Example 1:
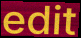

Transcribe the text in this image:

edit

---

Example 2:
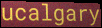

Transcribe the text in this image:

ucalgary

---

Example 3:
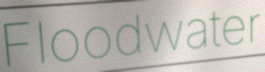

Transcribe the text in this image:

Floodwater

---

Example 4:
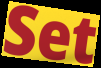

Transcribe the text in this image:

Set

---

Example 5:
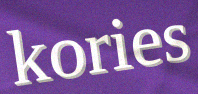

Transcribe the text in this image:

kories